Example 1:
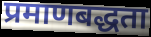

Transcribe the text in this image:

प्रमाणबद्धता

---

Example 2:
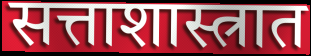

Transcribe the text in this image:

सत्ताशास्त्रात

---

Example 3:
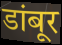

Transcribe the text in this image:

डांबूर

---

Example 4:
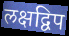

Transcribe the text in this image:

लक्षद्विप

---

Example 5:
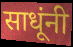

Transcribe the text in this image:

साधूंनी